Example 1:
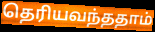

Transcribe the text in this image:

தெரியவந்ததாம்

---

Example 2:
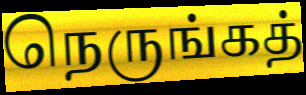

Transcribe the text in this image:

நெருங்கத்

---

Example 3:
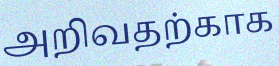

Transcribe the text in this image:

அறிவதற்காக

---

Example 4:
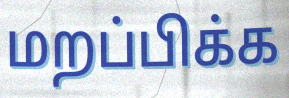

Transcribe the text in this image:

மறப்பிக்க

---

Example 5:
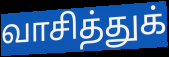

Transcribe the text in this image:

வாசித்துக்